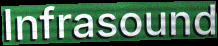
Infrasound